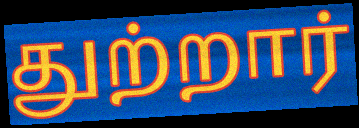
துற்றார்